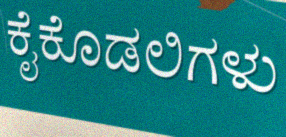
ಕೈಕೊಡಲಿಗಳು